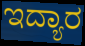
ಇದ್ಯಾರ